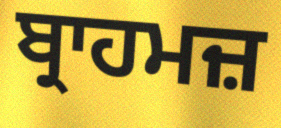
ਬ੍ਰਾਹਮਜ਼